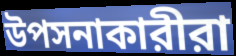
উপসনাকারীরা